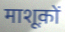
माशूक़ों